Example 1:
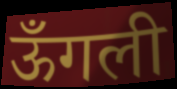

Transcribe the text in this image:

ऊँगली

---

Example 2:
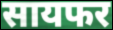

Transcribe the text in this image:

सायफर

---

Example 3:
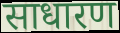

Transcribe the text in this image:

साधारण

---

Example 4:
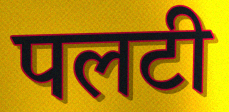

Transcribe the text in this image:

पलटी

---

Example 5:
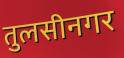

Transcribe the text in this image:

तुलसीनगर